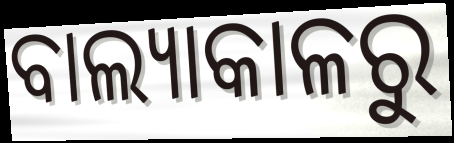
ବାଲ୍ୟାକାଳରୁ